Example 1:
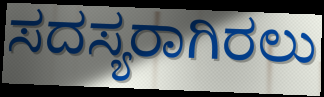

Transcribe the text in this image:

ಸದಸ್ಯರಾಗಿರಲು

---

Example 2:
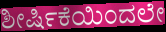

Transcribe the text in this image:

ಶೀರ್ಷಿಕೆಯಿಂದಲೇ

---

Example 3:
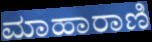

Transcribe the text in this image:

ಮಾಹಾರಾಣಿ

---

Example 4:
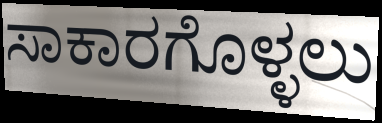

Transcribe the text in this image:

ಸಾಕಾರಗೊಳ್ಳಲು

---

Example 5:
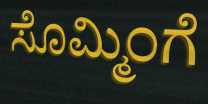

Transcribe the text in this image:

ಸೊಮ್ಮಿಂಗೆ